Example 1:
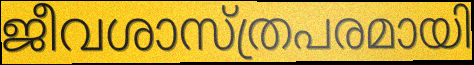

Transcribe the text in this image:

ജീവശാസ്ത്രപരമായി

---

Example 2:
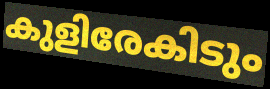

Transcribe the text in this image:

കുളിരേകിടും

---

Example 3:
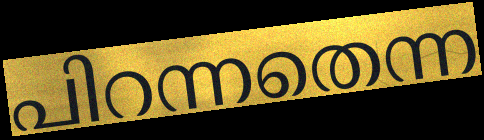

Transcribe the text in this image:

പിറന്നതെന്ന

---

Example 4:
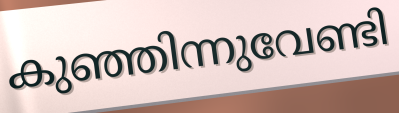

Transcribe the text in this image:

കുഞ്ഞിന്നുവേണ്ടി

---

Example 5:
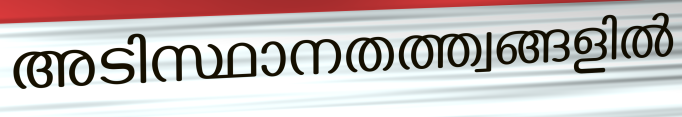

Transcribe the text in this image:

അടിസ്ഥാനതത്ത്വങ്ങളിൽ